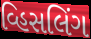
વ્હિસલિંગ